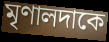
মৃণালদাকে